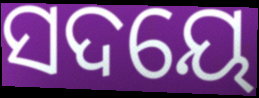
ସଦୟେ